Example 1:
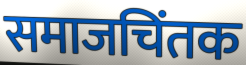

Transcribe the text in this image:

समाजचिंतक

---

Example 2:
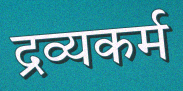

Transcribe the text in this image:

द्रव्यकर्म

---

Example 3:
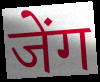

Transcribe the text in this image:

जेंग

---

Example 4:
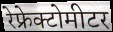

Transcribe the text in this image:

रेफ्रेक्टोमीटर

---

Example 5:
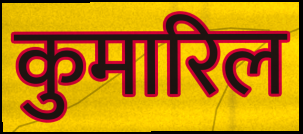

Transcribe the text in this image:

कुमारिल